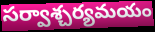
సర్వాశ్చర్యమయం